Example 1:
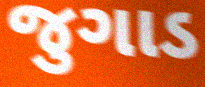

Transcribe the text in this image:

જુગાડ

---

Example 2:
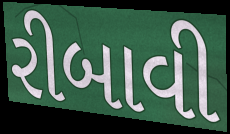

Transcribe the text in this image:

રીબાવી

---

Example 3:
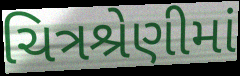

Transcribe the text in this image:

ચિત્રશ્રેણીમાં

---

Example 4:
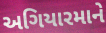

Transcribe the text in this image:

અગિયારમાને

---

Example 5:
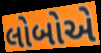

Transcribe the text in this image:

લોબોએ